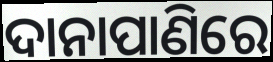
ଦାନାପାଣିରେ